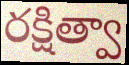
రక్షిత్వా